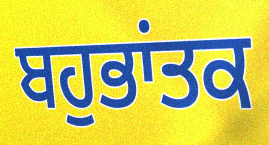
ਬਹੁਭਾਂਤਕ